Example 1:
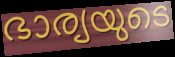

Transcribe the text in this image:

ഭാര്യയുടെ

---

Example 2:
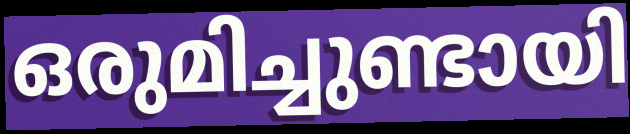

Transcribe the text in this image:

ഒരുമിച്ചുണ്ടായി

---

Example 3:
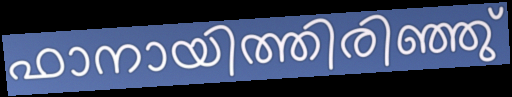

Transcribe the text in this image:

ഫാനായിത്തിരിഞ്ഞു്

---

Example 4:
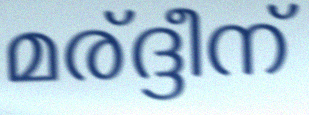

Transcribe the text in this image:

മര്ദ്ദീന്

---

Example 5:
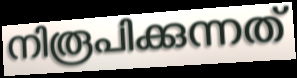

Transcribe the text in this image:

നിരൂപിക്കുന്നത്